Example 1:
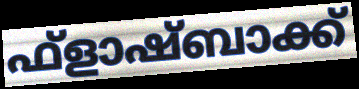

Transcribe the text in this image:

ഫ്ളാഷ്ബാക്ക്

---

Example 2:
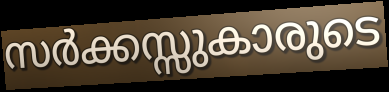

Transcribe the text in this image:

സർക്കസ്സുകാരുടെ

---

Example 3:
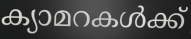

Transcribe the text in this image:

ക്യാമറകൾക്ക്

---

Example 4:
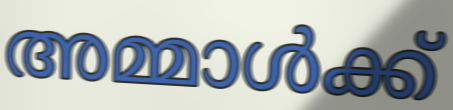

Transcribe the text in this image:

അമ്മാൾക്ക്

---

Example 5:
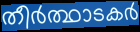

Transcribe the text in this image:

തീർത്ഥാടകർ